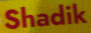
Shadik